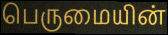
பெருமையின்